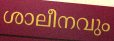
ശാലീനവും